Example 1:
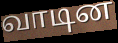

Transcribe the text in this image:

வாடின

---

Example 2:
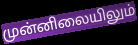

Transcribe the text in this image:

முன்னிலையிலும்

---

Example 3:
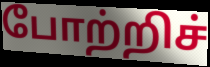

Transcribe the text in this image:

போற்றிச்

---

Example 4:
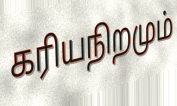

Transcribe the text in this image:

கரியநிறமும்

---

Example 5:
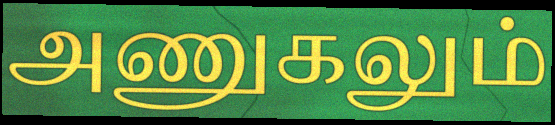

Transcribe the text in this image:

அணுகலும்